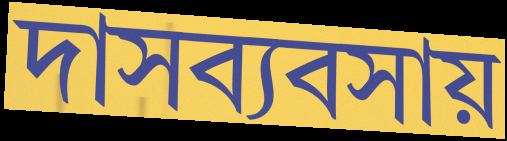
দাসব্যবসায়